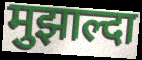
मुझाल्दा